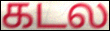
கடல